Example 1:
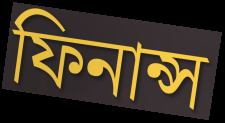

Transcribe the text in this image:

ফিনান্স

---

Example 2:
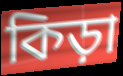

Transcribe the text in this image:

কিড়া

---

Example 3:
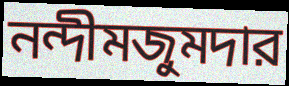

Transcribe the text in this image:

নন্দীমজুমদার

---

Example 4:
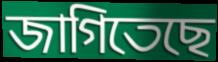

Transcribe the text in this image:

জাগিতেছে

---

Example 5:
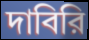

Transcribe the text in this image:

দাবিরি